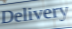
Delivery